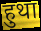
हुथा